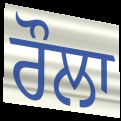
ਰੌਲਾ